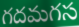
గదమగస